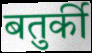
बतुर्की